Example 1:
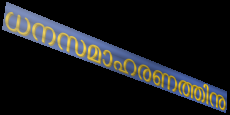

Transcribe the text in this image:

ധനസമാഹരണത്തിനു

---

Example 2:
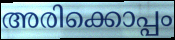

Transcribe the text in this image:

അരിക്കൊപ്പം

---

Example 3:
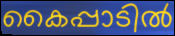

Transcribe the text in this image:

കൈപ്പാടിൽ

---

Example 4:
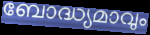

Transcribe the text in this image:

ബോദ്ധ്യമാവും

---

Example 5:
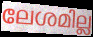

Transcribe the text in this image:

ലേശമില്ല